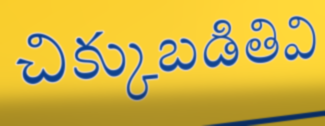
చిక్కుబడితివి